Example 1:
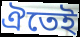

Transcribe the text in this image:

ঐতেই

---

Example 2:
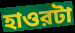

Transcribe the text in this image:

হাওরটা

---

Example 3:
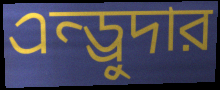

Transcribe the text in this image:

এন্ড্রুদার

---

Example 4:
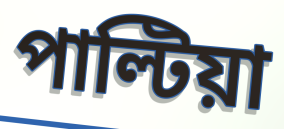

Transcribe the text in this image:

পাল্টিয়া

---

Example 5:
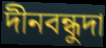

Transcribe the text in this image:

দীনবন্ধুদা